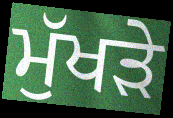
ਮੁੱਖੜੇ